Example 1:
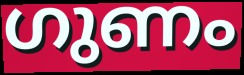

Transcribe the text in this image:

ഗുണം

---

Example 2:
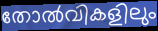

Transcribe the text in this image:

തോൽവികളിലും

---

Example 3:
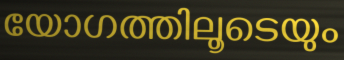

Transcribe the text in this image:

യോഗത്തിലൂടെയും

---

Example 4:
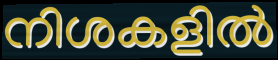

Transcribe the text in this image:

നിശകളിൽ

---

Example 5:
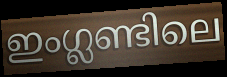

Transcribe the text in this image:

ഇംഗ്ലണ്ടിലെ